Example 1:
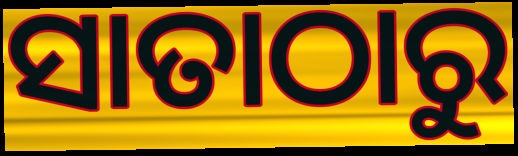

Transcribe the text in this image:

ସାତାଠାରୁ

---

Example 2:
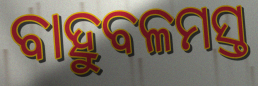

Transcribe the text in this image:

ବାହୁବଳମସ୍ତ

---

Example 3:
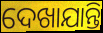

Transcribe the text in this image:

ଦେଖାଯାନ୍ତି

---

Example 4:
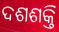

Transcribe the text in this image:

ଦଶଶକ୍ତି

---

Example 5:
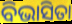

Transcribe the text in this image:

ବିଭାସିତା